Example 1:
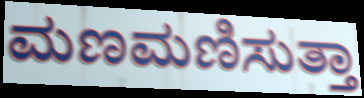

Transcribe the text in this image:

ಮಣಮಣಿಸುತ್ತಾ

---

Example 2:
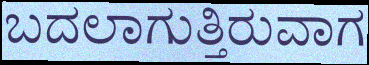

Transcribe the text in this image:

ಬದಲಾಗುತ್ತಿರುವಾಗ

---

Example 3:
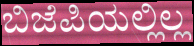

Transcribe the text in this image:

ಬಿಜೆಪಿಯಲ್ಲಿಲ್ಲ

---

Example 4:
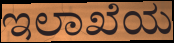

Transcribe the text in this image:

ಇಲಾಖೆಯ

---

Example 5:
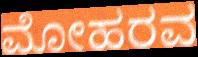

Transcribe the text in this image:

ಮೋಹರವ